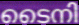
ടൈനി